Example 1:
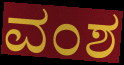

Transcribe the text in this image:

ವಂಶ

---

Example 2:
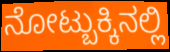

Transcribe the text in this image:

ನೋಟ್ಬುಕ್ಕಿನಲ್ಲಿ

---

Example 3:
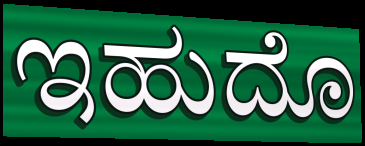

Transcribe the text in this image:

ಇಹುದೊ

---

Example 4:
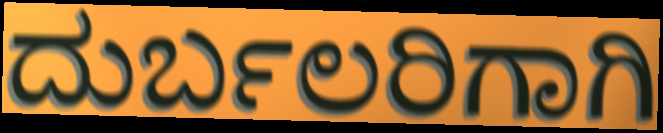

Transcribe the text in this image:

ದುರ್ಬಲರಿಗಾಗಿ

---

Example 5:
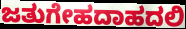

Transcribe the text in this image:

ಜತುಗೇಹದಾಹದಲಿ